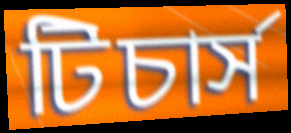
টিচার্স